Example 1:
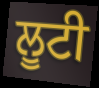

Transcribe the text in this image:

ਲੂਟੀ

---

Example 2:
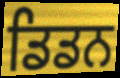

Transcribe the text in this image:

ਡਿਡਨ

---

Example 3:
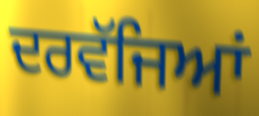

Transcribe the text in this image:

ਦਰਵੱਜਿਆਂ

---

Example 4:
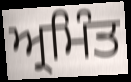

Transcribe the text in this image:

ਅ੍ਰਮਿੰਤ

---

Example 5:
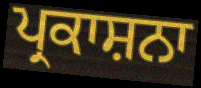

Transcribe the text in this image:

ਪ੍ਰਕਾਸ਼ਨਾ